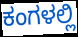
ಕಂಗಳಲ್ಲಿ